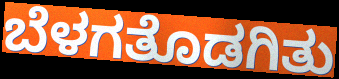
ಬೆಳಗತೊಡಗಿತು